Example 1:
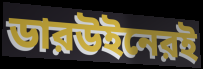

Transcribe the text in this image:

ডারউইনেরই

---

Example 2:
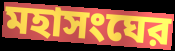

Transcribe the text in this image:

মহাসংঘের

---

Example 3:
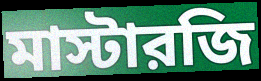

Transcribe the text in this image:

মাস্টারজি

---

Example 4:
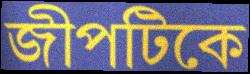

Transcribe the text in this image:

জীপটিকে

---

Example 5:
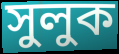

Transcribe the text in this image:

সুলুক